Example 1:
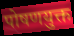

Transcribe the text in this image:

पोषणयुक्त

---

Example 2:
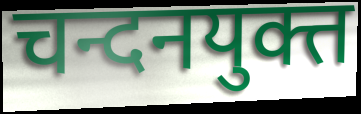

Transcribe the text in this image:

चन्दनयुक्त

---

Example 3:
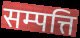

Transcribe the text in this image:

सम्पत्ति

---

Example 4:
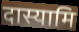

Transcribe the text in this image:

दास्यामि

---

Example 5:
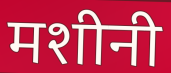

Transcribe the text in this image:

मशीनी